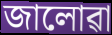
জালোৱা